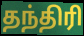
தந்திரி